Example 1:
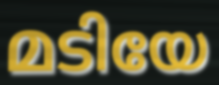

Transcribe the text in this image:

മടിയേ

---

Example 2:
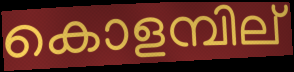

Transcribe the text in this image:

കൊളമ്പില്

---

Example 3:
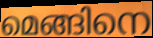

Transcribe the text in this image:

മെങ്ങിനെ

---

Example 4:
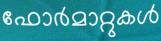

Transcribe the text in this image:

ഫോർമാറ്റുകൾ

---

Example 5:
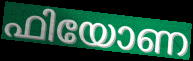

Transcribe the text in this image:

ഫിയോണ